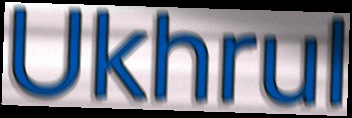
Ukhrul